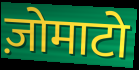
ज़ोमाटो